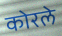
कोरले